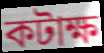
কটাক্ষ